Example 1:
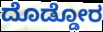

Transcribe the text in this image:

ದೊಡ್ಡೋರ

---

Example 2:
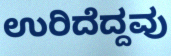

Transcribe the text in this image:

ಉರಿದೆದ್ದವು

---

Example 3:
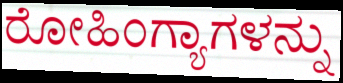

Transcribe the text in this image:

ರೋಹಿಂಗ್ಯಾಗಳನ್ನು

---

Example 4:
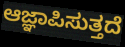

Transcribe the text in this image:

ಆಜ್ಞಾಪಿಸುತ್ತದೆ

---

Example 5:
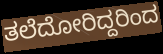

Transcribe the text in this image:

ತಲೆದೋರಿದ್ದರಿಂದ